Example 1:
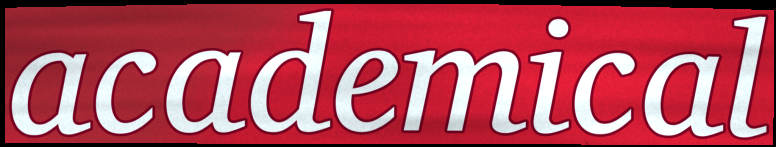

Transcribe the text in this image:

academical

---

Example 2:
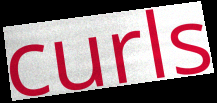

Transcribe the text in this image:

curls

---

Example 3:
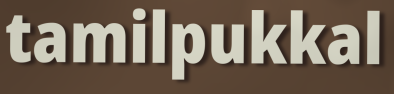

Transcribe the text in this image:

tamilpukkal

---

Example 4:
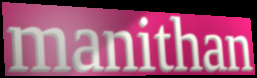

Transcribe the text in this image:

manithan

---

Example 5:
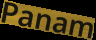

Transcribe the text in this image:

Panam